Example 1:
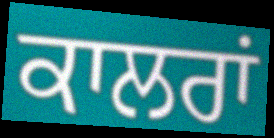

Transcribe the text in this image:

ਕਾਲਰਾਂ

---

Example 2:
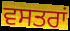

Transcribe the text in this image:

ਵਸਤਰਾਂ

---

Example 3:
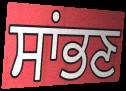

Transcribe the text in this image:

ਸਾਂਭਣ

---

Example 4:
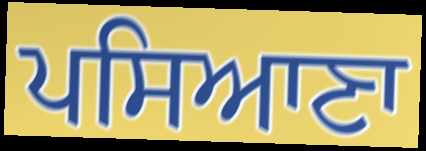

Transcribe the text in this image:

ਪਸਿਆਣਾ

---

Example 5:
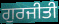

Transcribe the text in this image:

ਗੁਰਜੀਤੀ